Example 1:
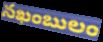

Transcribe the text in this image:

నఖంబులం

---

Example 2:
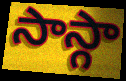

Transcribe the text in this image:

సాస్గా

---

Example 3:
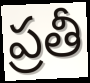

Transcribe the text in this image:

ప్రతీ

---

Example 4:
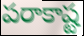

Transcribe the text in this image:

పరాకాష్ట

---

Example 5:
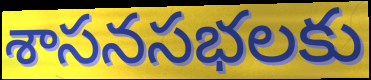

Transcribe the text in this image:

శాసనసభలకు